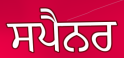
ਸਪੈਨਰ